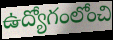
ఉద్యోగంలోంచి